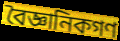
বৈজ্ঞানিকগণ